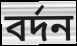
বর্দন